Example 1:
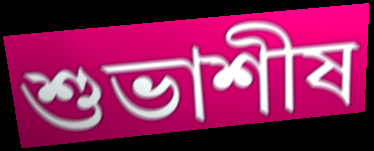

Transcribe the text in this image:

শুভাশীষ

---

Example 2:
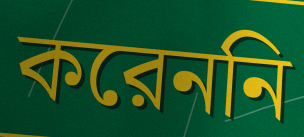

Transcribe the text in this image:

করেননি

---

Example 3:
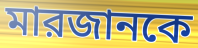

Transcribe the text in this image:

মারজানকে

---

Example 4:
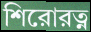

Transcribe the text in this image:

শিরোরত্ন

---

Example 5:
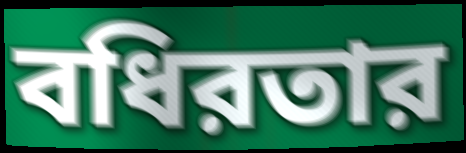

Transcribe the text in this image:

বধিরতার